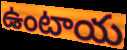
ఉంటాయ